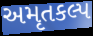
અમૃતકલ્પ